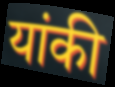
यांकी